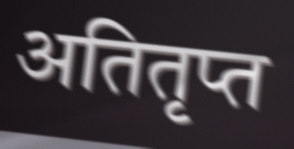
अतितृप्त